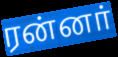
ரன்னர்